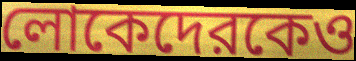
লোকেদেরকেও